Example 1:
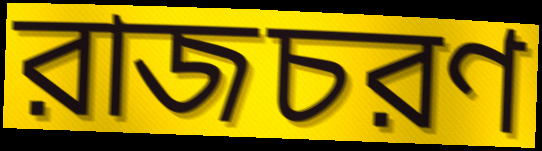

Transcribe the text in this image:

রাজচরণ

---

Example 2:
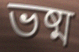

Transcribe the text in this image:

ভষ্ম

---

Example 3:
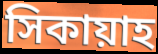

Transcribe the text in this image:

সিকায়াহ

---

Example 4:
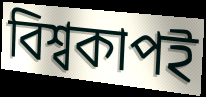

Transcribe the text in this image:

বিশ্বকাপই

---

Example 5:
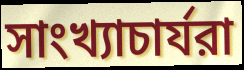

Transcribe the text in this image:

সাংখ্যাচার্যরা